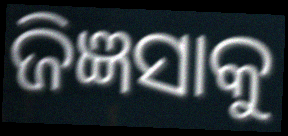
ଜିଜ୍ଞସାକୁ